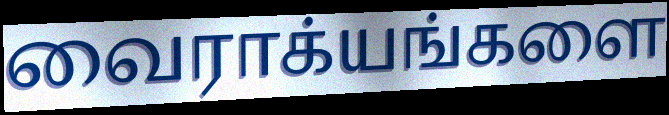
வைராக்யங்களை